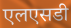
एलएसडी